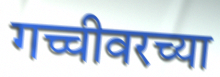
गच्चीवरच्या